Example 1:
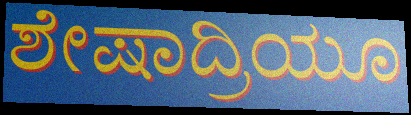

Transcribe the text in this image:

ಶೇಷಾದ್ರಿಯೂ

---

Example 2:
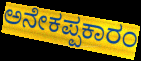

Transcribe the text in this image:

ಅನೇಕಪ್ಪಕಾರಂ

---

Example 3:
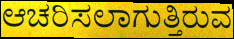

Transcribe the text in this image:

ಆಚರಿಸಲಾಗುತ್ತಿರುವ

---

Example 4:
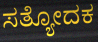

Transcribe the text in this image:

ಸತ್ಯೋದಕ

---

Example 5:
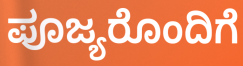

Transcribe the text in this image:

ಪೂಜ್ಯರೊಂದಿಗೆ